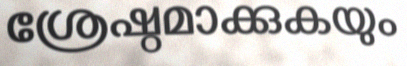
ശ്രേഷ്ഠമാക്കുകയും